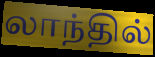
லாந்தில்